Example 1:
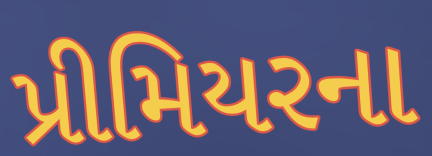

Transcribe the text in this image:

પ્રીમિયરના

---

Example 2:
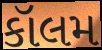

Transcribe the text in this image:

કૉલમ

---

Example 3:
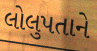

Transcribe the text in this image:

લોલુપતાને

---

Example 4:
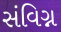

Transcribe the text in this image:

સંવિગ્ન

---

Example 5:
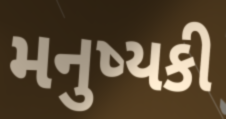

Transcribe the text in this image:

મનુષ્યકી